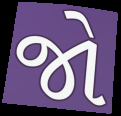
જો